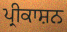
ਪ੍ਰੀਕਾਸ਼ਨ